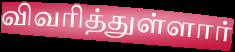
விவரித்துள்ளார்